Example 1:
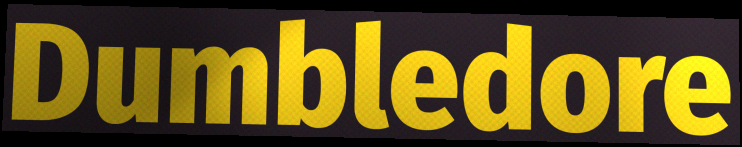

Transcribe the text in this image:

Dumbledore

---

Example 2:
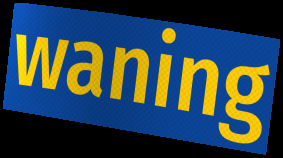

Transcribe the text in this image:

waning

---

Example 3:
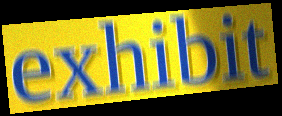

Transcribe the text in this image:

exhibit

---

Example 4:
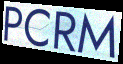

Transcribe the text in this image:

PCRM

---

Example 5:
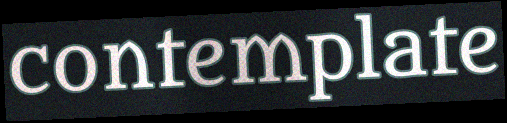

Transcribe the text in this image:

contemplate